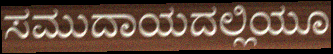
ಸಮುದಾಯದಲ್ಲಿಯೂ